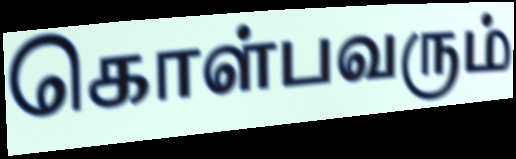
கொள்பவரும்